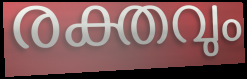
രക്തവും